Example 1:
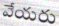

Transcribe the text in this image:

వేయరు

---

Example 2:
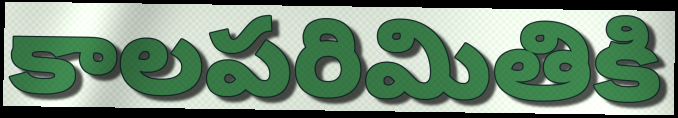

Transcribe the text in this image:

కాలపరిమితికి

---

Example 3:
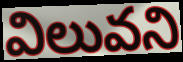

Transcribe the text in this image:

విలువని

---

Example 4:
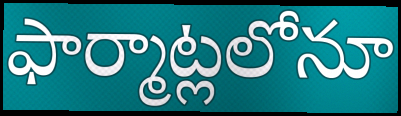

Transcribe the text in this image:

ఫార్మాట్లలోనూ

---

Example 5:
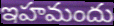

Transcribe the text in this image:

ఇహమందు